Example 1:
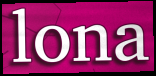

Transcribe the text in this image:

lona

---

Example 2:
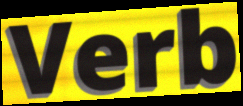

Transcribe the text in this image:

Verb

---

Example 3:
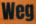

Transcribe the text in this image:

Weg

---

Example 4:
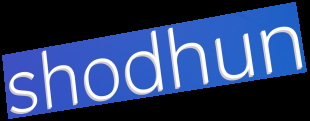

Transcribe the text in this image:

shodhun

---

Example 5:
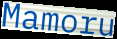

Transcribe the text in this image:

Mamoru